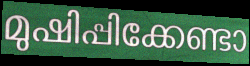
മുഷിപ്പിക്കേണ്ടാ